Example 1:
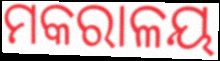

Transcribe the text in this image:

ମକରାଳୟ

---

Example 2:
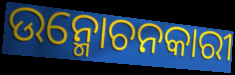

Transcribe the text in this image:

ଉନ୍ମୋଚନକାରୀ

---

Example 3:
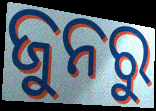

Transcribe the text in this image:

ଜୁନରୁ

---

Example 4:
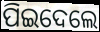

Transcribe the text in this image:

ପିଇଦେଲେ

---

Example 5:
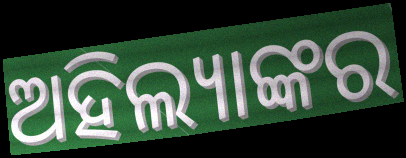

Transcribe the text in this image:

ଅହିଲ୍ୟାଙ୍କର